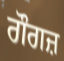
ਗੌਗਜ਼